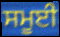
ਸਮੂਈ